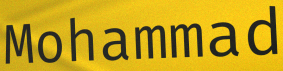
Mohammad